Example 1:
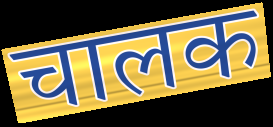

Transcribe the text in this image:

चालक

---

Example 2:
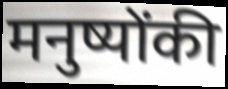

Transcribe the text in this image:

मनुष्योंकी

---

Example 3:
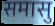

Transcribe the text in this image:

समासु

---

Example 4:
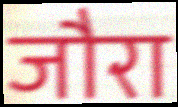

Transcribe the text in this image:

जौरा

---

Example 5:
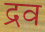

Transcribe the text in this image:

द्रव